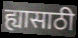
ह्यासाठी